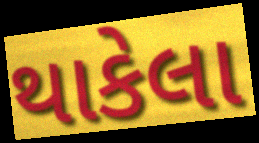
થાકેલા